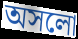
অসলো